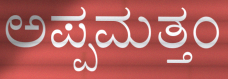
ಅಪ್ಪಮತ್ತಂ